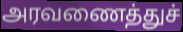
அரவணைத்துச்